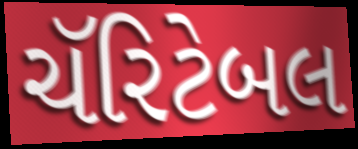
ચૅરિટેબલ